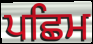
ਪਛਿਮ